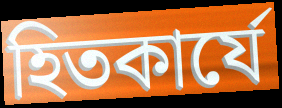
হিতকার্যে